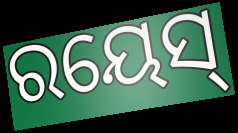
ରୟେସ୍